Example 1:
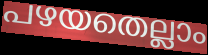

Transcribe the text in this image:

പഴയതെല്ലാം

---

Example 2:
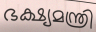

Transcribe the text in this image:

ഭക്ഷ്യമന്ത്രി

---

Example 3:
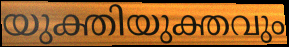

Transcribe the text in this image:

യുക്തിയുക്തവും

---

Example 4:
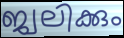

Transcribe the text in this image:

ജ്വലിക്കും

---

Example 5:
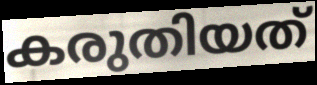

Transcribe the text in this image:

കരുതിയത്